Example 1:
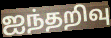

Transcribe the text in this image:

ஐந்தறிவு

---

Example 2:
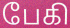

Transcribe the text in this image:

பேகி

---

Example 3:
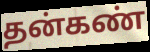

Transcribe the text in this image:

தன்கண்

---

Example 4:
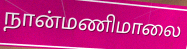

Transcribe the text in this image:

நான்மணிமாலை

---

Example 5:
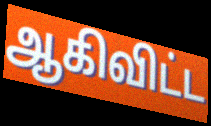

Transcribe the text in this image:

ஆகிவிட்ட